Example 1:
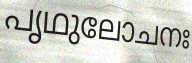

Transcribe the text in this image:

പൃഥുലോചനഃ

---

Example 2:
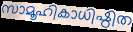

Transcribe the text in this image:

സാമൂഹികാധിഷ്ഠിത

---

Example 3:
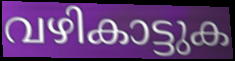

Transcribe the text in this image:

വഴികാട്ടുക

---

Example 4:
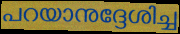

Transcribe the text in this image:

പറയാനുദ്ദേശിച്ച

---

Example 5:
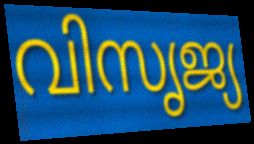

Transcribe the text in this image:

വിസൃജ്യ